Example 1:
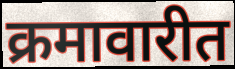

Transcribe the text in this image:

क्रमावारीत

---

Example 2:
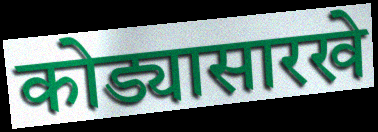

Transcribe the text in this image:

कोड्यासारखे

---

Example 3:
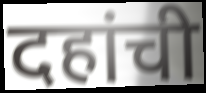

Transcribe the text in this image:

दहांची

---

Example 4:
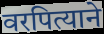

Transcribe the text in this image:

वरपित्याने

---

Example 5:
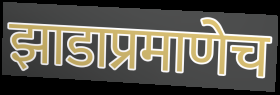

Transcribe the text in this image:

झाडाप्रमाणेच